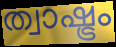
ത്വാഷ്ട്രം